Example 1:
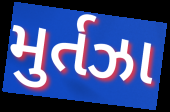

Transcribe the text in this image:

મુર્તઝા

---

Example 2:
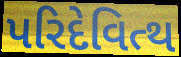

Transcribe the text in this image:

પરિદેવિત્થ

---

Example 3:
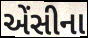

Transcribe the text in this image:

એંસીના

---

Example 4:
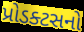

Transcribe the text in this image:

પ્રોડક્ટસનો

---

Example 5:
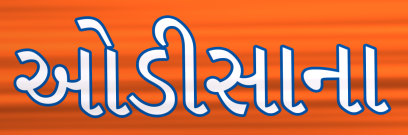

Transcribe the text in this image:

ઓડીસાના